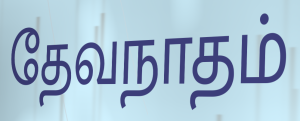
தேவநாதம்